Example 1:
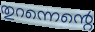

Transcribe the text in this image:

തുറന്നെന്റെ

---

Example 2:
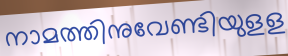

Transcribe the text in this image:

നാമത്തിനുവേണ്ടിയുളള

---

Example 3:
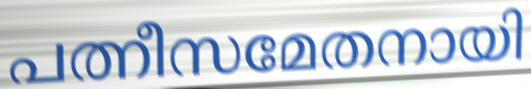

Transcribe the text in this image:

പത്നീസമേതനായി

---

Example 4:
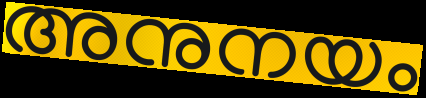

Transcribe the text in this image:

അനുനയം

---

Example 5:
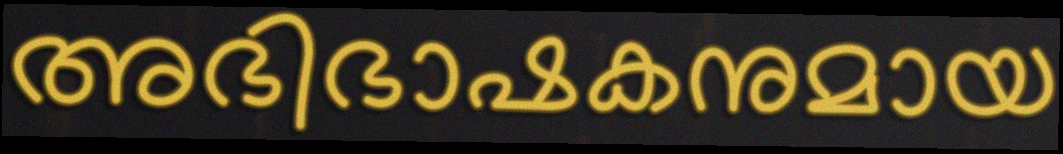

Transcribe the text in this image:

അഭിഭാഷകനുമായ